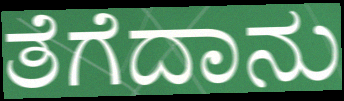
ತೆಗೆದಾನು